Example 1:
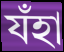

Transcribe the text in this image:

যঁহা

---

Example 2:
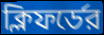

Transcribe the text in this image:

ক্লিফর্ডের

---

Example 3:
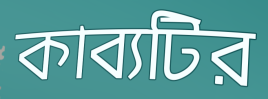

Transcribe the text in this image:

কাব্যটির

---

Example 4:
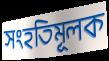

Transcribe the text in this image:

সংহতিমূলক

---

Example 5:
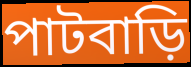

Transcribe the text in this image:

পাটবাড়ি